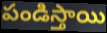
పండిస్తాయి